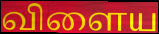
விளைய